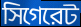
সিগেরেট